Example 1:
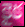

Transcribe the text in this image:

కైక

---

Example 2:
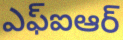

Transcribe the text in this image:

ఎఫ్ఐఆర్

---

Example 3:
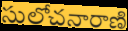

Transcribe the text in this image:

సులోచనారాణి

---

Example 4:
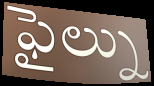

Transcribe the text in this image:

ఫైల్ను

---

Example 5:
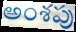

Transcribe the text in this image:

అంశపు